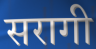
सरागी